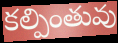
కల్పింతువు